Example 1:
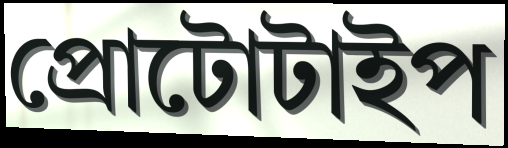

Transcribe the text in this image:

প্রোটোটাইপ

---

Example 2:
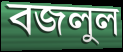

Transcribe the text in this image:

বজলুল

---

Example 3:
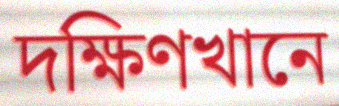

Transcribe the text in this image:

দক্ষিণখানে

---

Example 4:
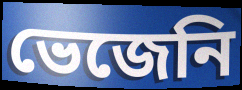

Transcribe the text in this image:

ভেজেনি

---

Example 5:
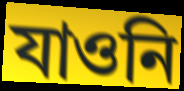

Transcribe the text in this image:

যাওনি